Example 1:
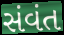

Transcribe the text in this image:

સંવંત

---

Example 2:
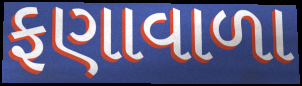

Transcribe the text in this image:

ફણાવાળા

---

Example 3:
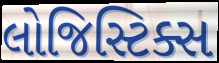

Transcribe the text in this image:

લોજિસ્ટિક્સ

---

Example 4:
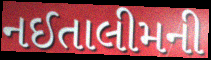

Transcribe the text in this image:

નઈતાલીમની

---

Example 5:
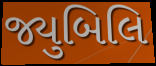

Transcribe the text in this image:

જ્યુબિલિ